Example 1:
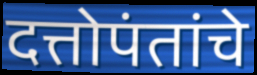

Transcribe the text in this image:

दत्तोपंतांचे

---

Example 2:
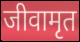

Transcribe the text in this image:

जीवामृत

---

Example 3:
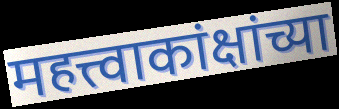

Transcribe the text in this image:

महत्त्वाकांक्षांच्या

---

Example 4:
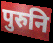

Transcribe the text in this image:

पुरुनि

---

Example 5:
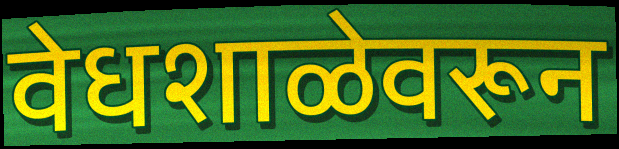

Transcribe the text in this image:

वेधशाळेवरून